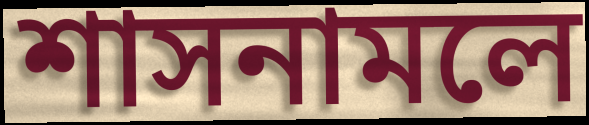
শাসনামলে